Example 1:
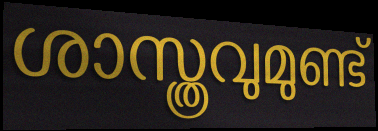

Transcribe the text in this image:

ശാസ്ത്രവുമുണ്ട്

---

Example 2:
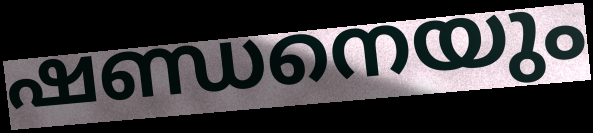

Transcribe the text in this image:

ഷണ്ഡനെയും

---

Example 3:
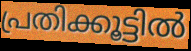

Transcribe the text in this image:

പ്രതിക്കൂട്ടിൽ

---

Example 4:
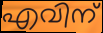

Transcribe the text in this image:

എവിന്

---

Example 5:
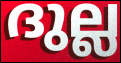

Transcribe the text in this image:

ദുല്ല